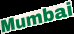
Mumbai